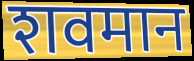
शवमान